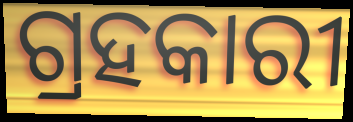
ଗ୍ରହକାରୀ